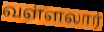
வள்ளலார்